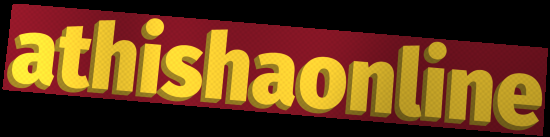
athishaonline